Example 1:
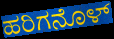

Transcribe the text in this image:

ಹರಿಗನೊಳ್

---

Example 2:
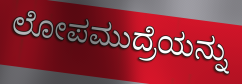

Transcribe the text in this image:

ಲೋಪಮುದ್ರೆಯನ್ನು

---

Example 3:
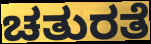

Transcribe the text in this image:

ಚತುರತೆ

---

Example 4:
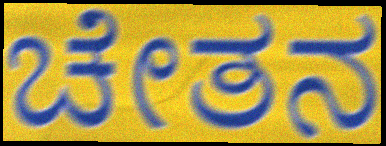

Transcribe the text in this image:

ಚೇತನ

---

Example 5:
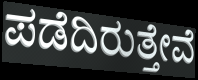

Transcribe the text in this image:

ಪಡೆದಿರುತ್ತೇವೆ